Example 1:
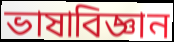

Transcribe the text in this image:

ভাষাবিজ্ঞান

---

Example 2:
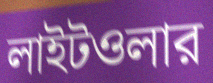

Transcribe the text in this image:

লাইটওলার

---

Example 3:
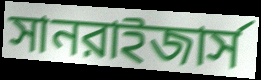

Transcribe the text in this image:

সানরাইজার্স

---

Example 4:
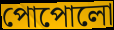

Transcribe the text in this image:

পোপোলো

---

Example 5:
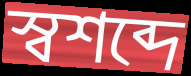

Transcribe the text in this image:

স্বশব্দে